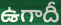
ఉగాదీ